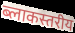
ब्लाकस्तरीय